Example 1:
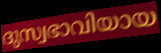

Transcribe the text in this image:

ദുസ്വഭാവിയായ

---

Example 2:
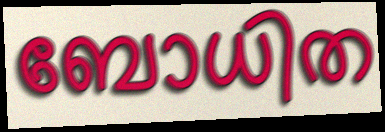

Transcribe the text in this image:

ബോധിത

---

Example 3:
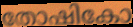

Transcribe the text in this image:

തോഷികോ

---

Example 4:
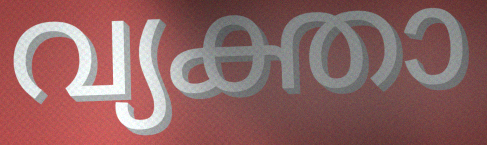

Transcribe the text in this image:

വ്യക്താ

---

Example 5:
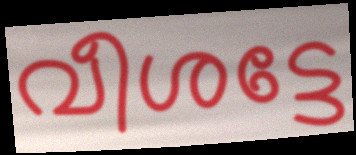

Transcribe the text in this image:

വീശട്ടേ